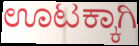
ಊಟಕ್ಕಾಗಿ